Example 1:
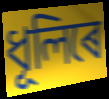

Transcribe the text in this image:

ধূলিৰে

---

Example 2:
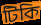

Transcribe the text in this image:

টিকি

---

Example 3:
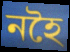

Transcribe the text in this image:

নহৈ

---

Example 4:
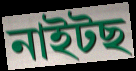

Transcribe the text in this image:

নাইটছ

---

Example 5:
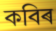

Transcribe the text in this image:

কবিৰ